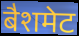
बैशमेट